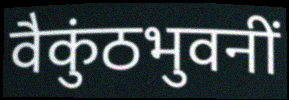
वैकुंठभुवनीं